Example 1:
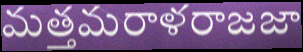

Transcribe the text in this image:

మత్తమరాళరాజజా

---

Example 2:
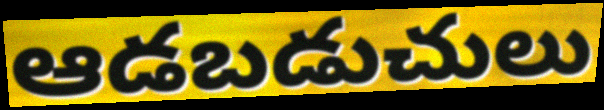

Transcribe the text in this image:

ఆడబడుచులు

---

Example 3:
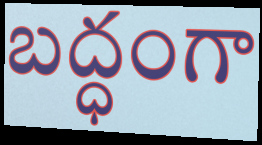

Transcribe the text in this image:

బద్ధంగా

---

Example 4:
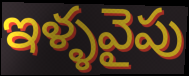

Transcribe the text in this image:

ఇళ్ళవైపు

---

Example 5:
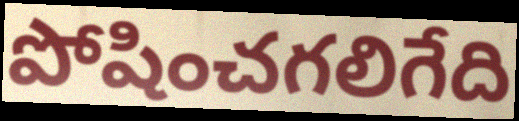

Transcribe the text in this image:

పోషించగలిగేది